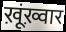
ख़ूंख़्वार